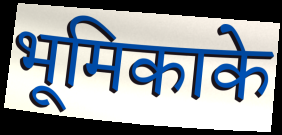
भूमिकाके